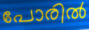
പോരിൽ